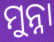
ମୁନ୍ନା